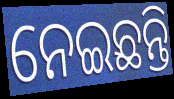
ନେଇଛନ୍ତି